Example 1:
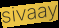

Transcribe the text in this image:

sivaay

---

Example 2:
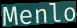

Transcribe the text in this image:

Menlo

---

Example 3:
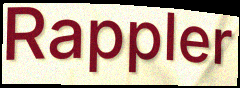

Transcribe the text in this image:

Rappler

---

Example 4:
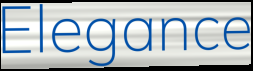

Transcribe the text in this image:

Elegance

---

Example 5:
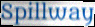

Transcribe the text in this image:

Spillway